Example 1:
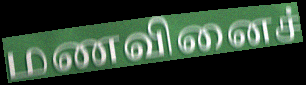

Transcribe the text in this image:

மணவினைச்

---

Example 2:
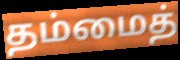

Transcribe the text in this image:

தம்மைத்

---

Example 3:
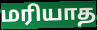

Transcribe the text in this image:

மரியாத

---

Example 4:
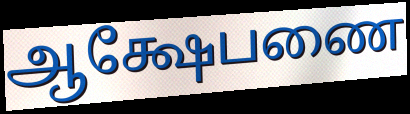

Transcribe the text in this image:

ஆக்ஷேபணை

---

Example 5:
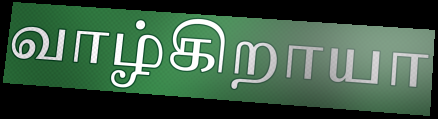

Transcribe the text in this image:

வாழ்கிறாயா